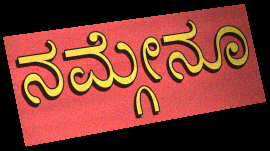
ನಮ್ಗೇನೂ